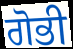
ਗੋਭੀ